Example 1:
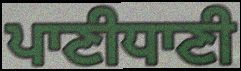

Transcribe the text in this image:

ਪਾਣੀਧਾਣੀ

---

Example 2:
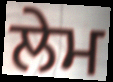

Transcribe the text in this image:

ਲੇਮ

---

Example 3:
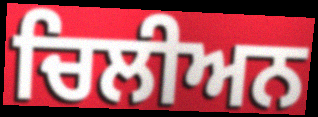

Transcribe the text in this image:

ਚਿਲੀਅਨ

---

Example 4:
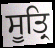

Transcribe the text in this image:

ਸੂਤ੍ਰਿ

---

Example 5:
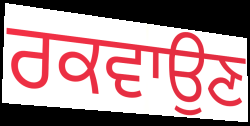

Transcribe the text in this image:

ਰਕਵਾਉਣ